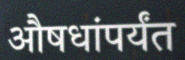
औषधांपर्यंत